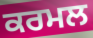
ਕਰਮਲ